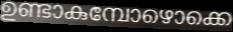
ഉണ്ടാകുമ്പോഴൊക്കെ